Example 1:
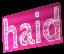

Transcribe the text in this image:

haid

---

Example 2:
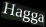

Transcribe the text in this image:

Hagga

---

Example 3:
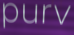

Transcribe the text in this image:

purv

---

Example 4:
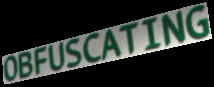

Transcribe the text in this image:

OBFUSCATING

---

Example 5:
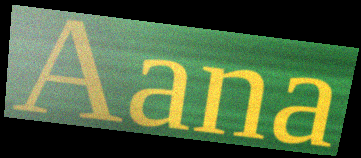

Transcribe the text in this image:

Aana